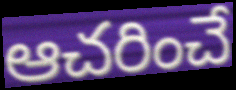
ఆచరించే